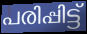
പരിപ്പിട്ട്